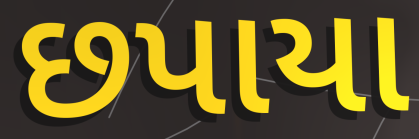
છપાયા